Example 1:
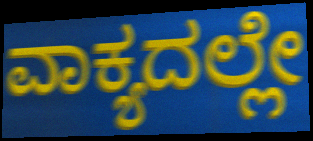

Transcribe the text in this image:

ವಾಕ್ಯದಲ್ಲೇ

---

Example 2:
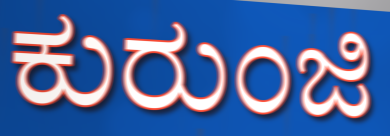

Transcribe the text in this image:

ಕುರುಂಜಿ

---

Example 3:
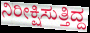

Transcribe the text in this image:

ನಿರೀಕ್ಷಿಸುತ್ತಿದ್ದ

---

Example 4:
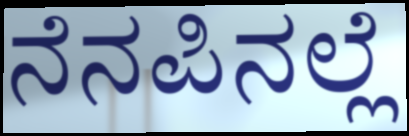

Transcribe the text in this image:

ನೆನಪಿನಲ್ಲೆ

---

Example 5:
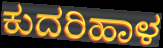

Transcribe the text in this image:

ಕುದರಿಹಾಳ